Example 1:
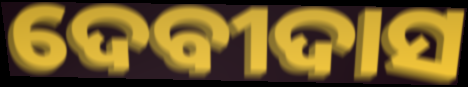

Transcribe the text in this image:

ଦେବୀଦାସ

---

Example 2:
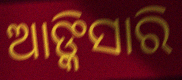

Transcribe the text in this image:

ଆଙ୍କିସାରି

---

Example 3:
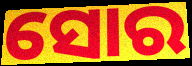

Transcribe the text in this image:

ସୋର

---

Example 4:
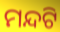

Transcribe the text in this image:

ମନ୍ଦଟି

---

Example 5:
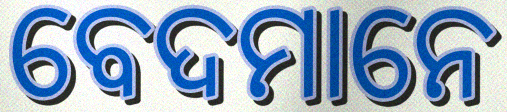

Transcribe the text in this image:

ବେଦମାନେ